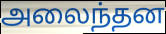
அலைந்தன